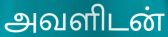
அவளிடன்